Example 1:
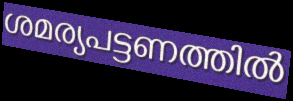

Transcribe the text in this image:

ശമര്യപട്ടണത്തിൽ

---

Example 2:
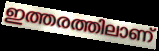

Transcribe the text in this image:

ഇത്തരത്തിലാണ്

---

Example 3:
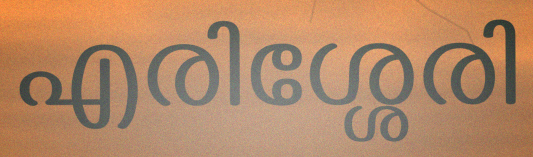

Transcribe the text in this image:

എരിശ്ശേരി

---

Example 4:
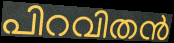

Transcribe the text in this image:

പിറവിതൻ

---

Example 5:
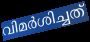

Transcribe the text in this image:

വിമർശിച്ചത്